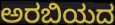
ಅರಬಿಯದ